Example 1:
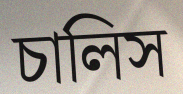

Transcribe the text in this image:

চালিস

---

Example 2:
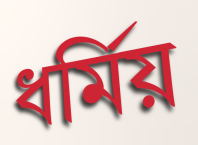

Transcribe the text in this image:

ধর্মিয়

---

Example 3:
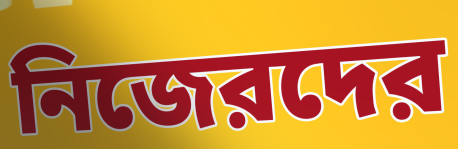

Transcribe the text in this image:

নিজেরদের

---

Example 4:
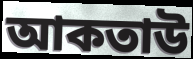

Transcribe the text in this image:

আকতাউ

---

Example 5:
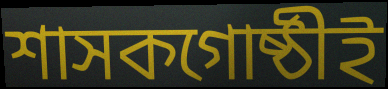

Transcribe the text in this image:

শাসকগোষ্ঠীই